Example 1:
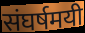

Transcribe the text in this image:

संघर्षमयी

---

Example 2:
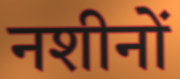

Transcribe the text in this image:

नशीनों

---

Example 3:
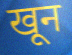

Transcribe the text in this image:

खून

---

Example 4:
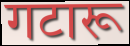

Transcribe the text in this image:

गटारू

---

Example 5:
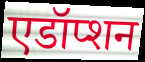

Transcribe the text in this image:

एडॉप्शन